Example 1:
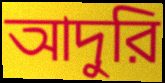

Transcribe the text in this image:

আদুরি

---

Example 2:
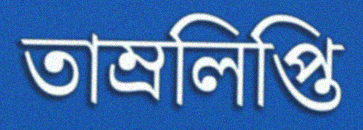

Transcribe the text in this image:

তাম্রলিপ্তি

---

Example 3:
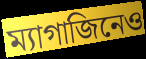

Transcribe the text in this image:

ম্যাগাজিনেও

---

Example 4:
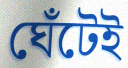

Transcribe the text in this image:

ঘেঁটেই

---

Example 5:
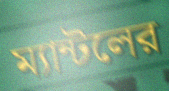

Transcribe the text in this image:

ম্যান্টলের